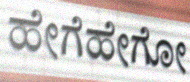
ಹೇಗೆಹೇಗೋ